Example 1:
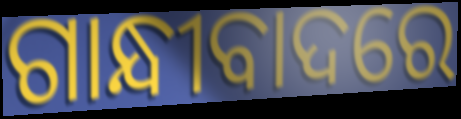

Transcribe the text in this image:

ଗାନ୍ଧୀବାଦରେ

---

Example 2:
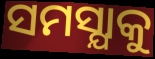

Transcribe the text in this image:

ସମସ୍ଯାକୁ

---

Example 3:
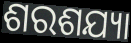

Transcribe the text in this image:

ଶରଶଯ୍ୟା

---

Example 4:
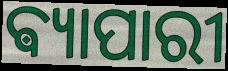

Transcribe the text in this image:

ଵ୍ୟାପାରୀ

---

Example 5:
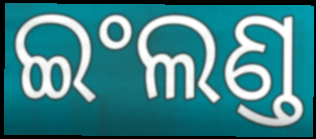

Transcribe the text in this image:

ଇଂଲଣ୍ଡ